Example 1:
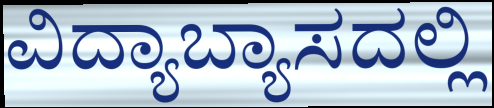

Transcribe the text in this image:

ವಿದ್ಯಾಬ್ಯಾಸದಲ್ಲಿ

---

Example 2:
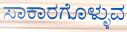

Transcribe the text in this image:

ಸಾಕಾರಗೊಳ್ಳುವ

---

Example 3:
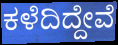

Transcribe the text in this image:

ಕಳೆದಿದ್ದೇವೆ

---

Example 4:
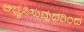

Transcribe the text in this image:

ಅಭ್ಯಸಿಸುವುದರಿಂದ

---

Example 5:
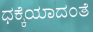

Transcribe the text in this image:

ಧಕ್ಕೆಯಾದಂತೆ